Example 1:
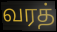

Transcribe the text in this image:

வரத்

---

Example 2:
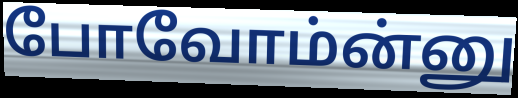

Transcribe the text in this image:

போவோம்ன்னு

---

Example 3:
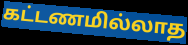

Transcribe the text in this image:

கட்டணமில்லாத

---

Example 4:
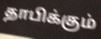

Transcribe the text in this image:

தாபிக்கும்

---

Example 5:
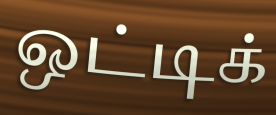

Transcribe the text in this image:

ஒட்டிக்